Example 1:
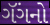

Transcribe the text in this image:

ગૅંગનો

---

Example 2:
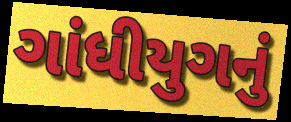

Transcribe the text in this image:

ગાંધીયુગનું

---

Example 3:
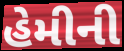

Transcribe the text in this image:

હેમીની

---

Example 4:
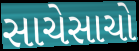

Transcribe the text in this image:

સાચેસાચો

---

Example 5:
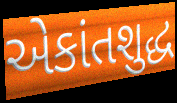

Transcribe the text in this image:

એકાંતશુદ્ધ